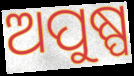
ଅପୁଷ୍ପ